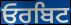
ਓਰਬਿਟ